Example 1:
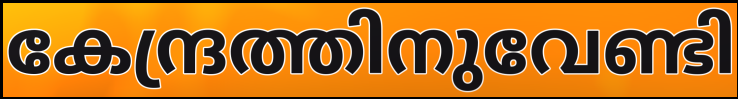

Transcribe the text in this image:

കേന്ദ്രത്തിനുവേണ്ടി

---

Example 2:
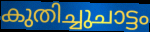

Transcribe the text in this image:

കുതിച്ചുചാട്ടം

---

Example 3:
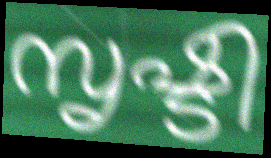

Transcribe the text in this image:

സൃഷ്ടി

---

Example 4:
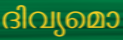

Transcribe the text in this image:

ദിവ്യമൊ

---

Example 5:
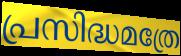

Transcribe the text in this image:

പ്രസിദ്ധമത്രേ